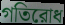
গতিরোধ